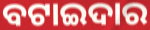
ବଟାଇଦାର